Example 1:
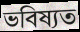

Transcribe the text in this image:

ভবিষ্যত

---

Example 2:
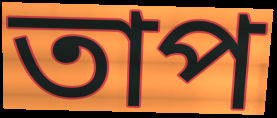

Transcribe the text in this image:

তাপ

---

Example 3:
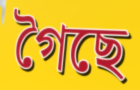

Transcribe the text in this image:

গৈছে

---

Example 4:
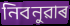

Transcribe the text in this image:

নিবনুৱাৰ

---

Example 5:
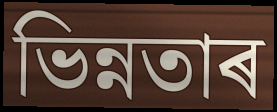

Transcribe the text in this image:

ভিন্নতাৰ